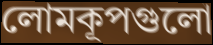
লোমকূপগুলো